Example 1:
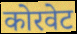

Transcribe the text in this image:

कोरवेट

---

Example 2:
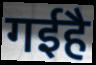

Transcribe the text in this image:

गईहै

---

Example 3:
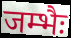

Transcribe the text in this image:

जम्भैः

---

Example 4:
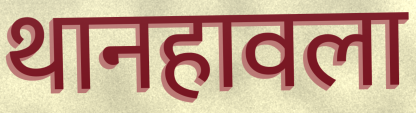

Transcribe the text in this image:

थानहावला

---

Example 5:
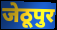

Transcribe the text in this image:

जेठूपुर